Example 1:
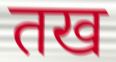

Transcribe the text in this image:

तख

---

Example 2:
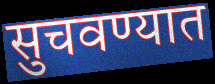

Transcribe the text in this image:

सुचवण्यात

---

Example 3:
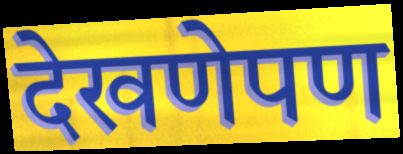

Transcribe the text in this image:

देखणेपण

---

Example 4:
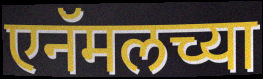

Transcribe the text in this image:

एनॅमलच्या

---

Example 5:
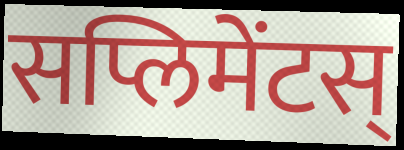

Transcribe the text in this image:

सप्लिमेंटस्